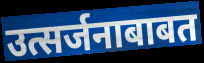
उत्सर्जनाबाबत